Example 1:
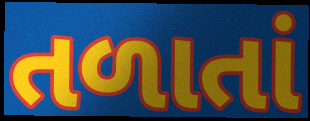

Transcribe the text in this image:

તળાતાં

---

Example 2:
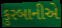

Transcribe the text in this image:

કુરબાનીએ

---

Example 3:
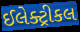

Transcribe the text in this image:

ઈલેક્ટ્રીકલ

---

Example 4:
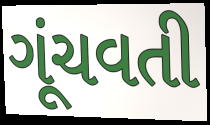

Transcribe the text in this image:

ગૂંચવતી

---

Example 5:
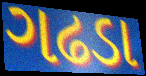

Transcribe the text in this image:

ગઢડા